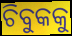
ଚିବୁକକୁ